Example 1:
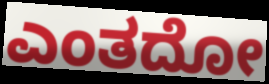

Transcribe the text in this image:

ಎಂತದೋ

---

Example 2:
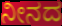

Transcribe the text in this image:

ನೀನದ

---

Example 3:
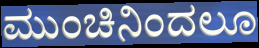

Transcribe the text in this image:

ಮುಂಚಿನಿಂದಲೂ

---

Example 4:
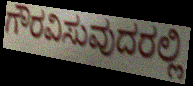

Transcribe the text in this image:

ಗೌರವಿಸುವುದರಲ್ಲಿ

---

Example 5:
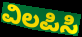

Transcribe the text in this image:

ವಿಲಪಿಸಿ